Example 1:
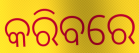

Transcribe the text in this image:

କରିବରେ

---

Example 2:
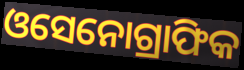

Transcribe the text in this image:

ଓସେନୋଗ୍ରାଫିକ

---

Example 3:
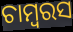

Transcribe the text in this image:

ଚାମ୍ବରସ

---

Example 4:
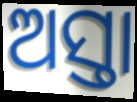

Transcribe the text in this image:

ଅସ୍ତା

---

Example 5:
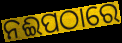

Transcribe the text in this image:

ନଈପଠାରେ